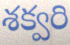
శక్వరి